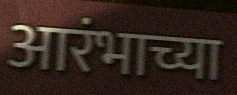
आरंभाच्या